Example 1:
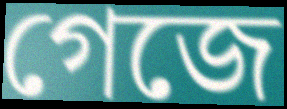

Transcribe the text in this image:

গেজে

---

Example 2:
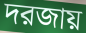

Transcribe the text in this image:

দরজায়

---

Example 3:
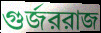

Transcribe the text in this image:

গুর্জররাজ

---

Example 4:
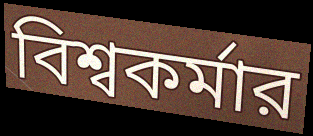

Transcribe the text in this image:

বিশ্বকর্মার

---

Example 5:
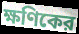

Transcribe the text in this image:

ক্ষণিকের